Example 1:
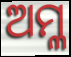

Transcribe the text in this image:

ଅମ୍ଳ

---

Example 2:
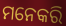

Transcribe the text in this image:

ମନେକରି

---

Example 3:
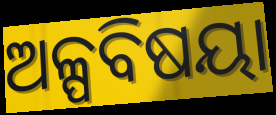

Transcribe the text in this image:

ଅଳ୍ପବିଷୟା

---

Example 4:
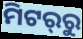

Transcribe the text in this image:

ମିଟର୍‍ରୁ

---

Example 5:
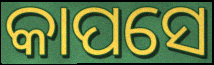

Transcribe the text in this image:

କାପସେ